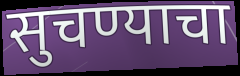
सुचण्याचा